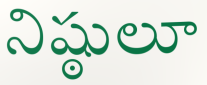
నిష్ఠులూ